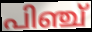
പിഞ്ച്